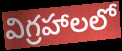
విగ్రహాలలో